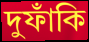
দুফাঁকি